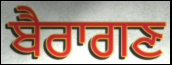
ਬੈਰਾਗਣ